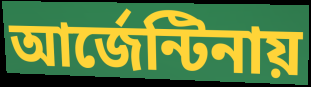
আর্জেন্টিনায়